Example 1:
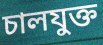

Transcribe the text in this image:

চালযুক্ত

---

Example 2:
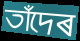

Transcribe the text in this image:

তাঁদেৰ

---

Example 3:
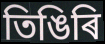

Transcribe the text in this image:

তিঙিৰি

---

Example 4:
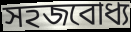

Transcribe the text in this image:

সহজবোধ্য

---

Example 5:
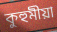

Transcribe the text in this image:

কুহুমীয়া